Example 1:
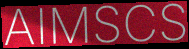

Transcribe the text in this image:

AIMSCS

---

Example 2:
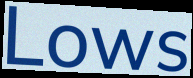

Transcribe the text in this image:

Lows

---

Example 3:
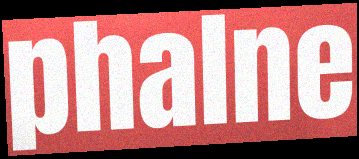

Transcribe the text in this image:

phalne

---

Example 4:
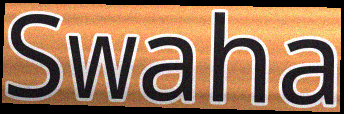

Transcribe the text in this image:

Swaha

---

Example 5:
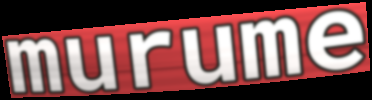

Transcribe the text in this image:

murume